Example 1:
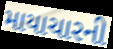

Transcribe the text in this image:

માયાચારની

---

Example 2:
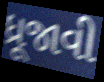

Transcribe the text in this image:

ધ્રૂજાવી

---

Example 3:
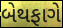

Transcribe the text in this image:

બેથફાગે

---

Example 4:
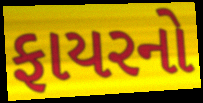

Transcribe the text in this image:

ફાયરનો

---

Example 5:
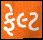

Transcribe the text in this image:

ફેલ્ટ